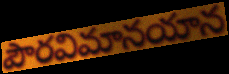
పౌరవిమానయాన